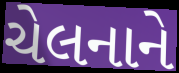
ચેલનાને